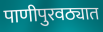
पाणीपुरवठ्यात